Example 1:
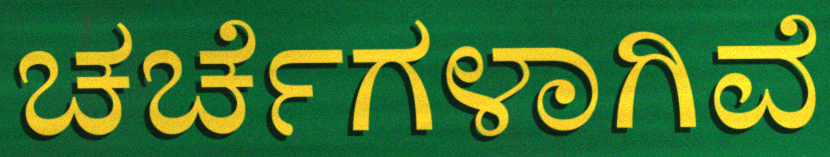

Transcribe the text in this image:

ಚರ್ಚೆಗಳಾಗಿವೆ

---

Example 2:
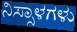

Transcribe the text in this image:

ನಿಸ್ಸಾಳಗಳು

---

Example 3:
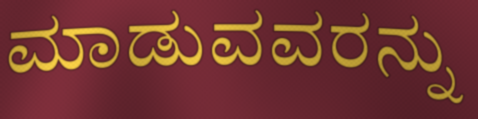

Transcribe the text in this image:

ಮಾಡುವವರನ್ನು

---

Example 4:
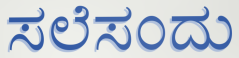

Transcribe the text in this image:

ಸಲೆಸಂದು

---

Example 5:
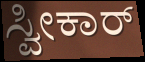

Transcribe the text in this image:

ಸ್ವೀಕಾರ್